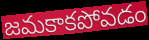
జమకాకపోవడం